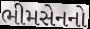
ભીમસેનનો